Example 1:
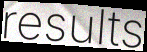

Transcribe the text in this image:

results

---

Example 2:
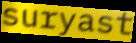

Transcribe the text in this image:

suryast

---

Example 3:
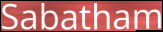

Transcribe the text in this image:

Sabatham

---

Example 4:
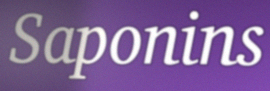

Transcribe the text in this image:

Saponins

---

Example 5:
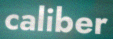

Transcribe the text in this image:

caliber